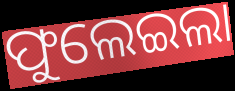
ଫୁଲେଇଲା